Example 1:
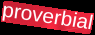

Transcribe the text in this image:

proverbial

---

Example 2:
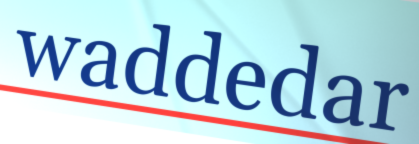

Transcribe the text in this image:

waddedar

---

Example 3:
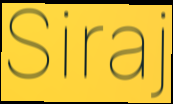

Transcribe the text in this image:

Siraj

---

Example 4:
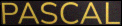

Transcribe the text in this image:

PASCAL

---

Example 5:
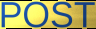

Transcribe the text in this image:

POST